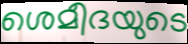
ശെമീദയുടെ